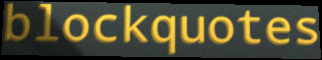
blockquotes